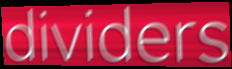
dividers